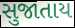
સુજાતાય